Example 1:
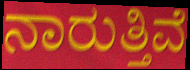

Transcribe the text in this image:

ನಾರುತ್ತಿವೆ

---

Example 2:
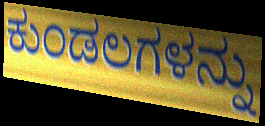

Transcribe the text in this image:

ಕುಂಡಲಗಳನ್ನು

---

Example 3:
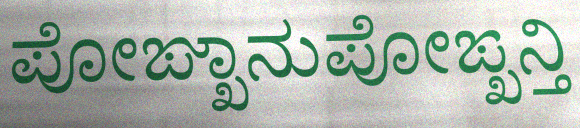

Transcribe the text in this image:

ಪೋಙ್ಖಾನುಪೋಙ್ಖನ್ತಿ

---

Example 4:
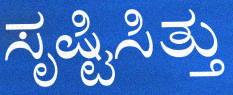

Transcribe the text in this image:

ಸೃಷ್ಟಿಸಿತ್ತು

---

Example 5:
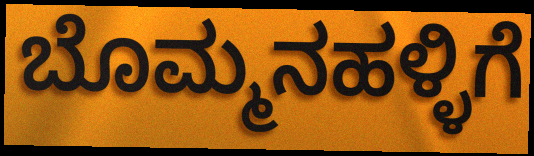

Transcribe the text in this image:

ಬೊಮ್ಮನಹಳ್ಳಿಗೆ